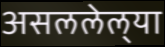
असललेल्या